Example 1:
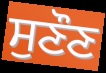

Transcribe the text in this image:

ਸੁਣੌਣ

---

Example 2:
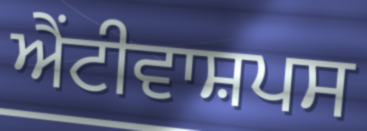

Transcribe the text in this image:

ਐਂਟੀਵਾਸ਼ਪਸ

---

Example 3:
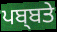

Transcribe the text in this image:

ਪਬ੍ਬਤੇ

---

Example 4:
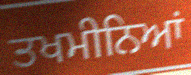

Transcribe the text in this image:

ਤਖਮੀਨਿਆਂ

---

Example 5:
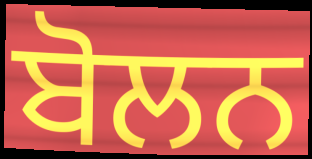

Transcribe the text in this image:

ਬੋਲਨ